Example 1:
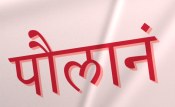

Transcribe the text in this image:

पौलानं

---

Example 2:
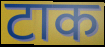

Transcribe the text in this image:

टाक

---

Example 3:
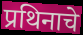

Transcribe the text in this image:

प्रथिनाचे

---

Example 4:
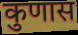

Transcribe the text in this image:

कुणास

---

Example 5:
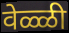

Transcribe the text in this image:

वेळ्ळी